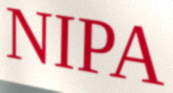
NIPA